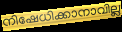
നിഷേധിക്കാനാവില്ല